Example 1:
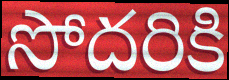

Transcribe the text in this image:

సోదరికి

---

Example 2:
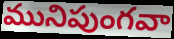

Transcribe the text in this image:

మునిపుంగవా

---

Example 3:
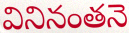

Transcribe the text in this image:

వినినంతనె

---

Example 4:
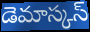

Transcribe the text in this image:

డెమాస్కస్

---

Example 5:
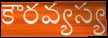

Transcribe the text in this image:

కౌరవ్యస్య